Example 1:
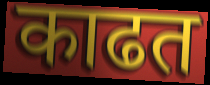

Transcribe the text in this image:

काढत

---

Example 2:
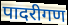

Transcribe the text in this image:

पादरीगण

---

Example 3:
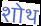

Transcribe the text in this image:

शोथ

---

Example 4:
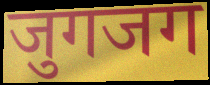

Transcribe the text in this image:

जुगजग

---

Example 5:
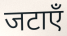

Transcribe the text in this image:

जटाएँ